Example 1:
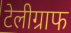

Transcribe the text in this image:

टेलीग्राफ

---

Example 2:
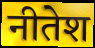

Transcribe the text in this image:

नीतेश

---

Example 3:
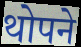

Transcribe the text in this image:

थोपने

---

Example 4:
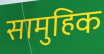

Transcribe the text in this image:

सामुहिक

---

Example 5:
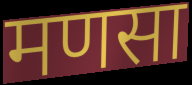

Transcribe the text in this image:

मणसा